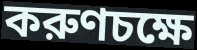
করুণচক্ষে